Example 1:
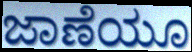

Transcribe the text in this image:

ಜಾಣೆಯೂ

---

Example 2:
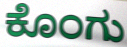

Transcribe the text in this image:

ಕೊಂಗು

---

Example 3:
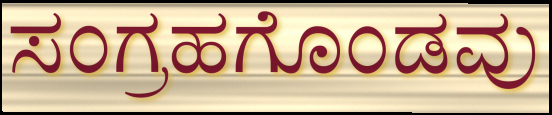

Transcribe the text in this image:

ಸಂಗ್ರಹಗೊಂಡವು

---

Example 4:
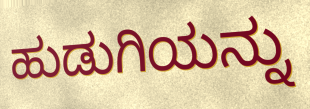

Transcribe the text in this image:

ಹುಡುಗಿಯನ್ನು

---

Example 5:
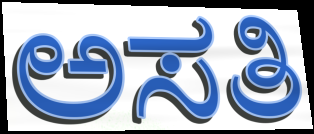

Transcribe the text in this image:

ಅಸತಿ